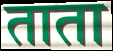
ताता